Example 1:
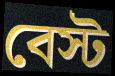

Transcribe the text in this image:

বেস্ট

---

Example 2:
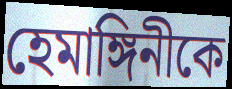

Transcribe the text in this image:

হেমাঙ্গিনীকে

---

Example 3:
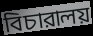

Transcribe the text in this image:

বিচারালয়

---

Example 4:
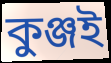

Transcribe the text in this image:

কুঞ্জই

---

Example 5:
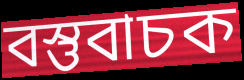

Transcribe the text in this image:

বস্তুবাচক